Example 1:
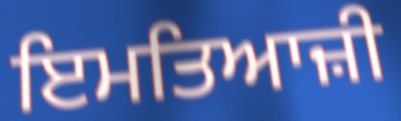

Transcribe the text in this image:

ਇਮਤਿਆਜ਼ੀ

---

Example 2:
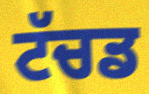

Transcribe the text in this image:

ਟੱਚਡ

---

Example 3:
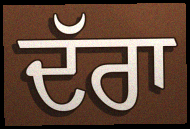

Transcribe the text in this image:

ਦੱਰਾ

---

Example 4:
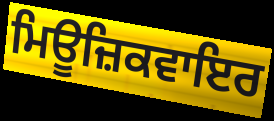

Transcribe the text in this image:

ਮਿਊਜ਼ਿਕਵਾਇਰ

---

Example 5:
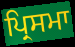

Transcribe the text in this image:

ਪ੍ਰਿਸਮਾ